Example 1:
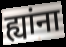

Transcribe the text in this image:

ह्यांना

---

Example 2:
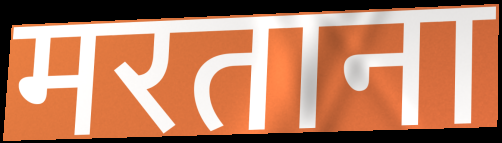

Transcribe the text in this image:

मरताना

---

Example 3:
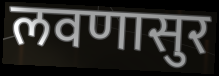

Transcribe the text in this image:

लवणासुर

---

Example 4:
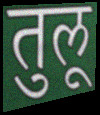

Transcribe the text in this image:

तुलू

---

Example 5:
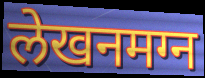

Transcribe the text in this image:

लेखनमग्न